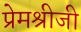
प्रेमश्रीजी